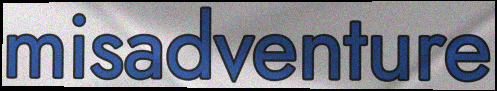
misadventure